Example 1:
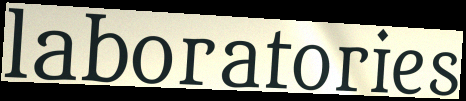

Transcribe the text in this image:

laboratories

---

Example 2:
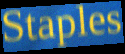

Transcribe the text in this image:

Staples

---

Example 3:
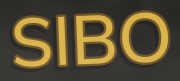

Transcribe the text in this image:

SIBO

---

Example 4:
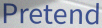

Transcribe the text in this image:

Pretend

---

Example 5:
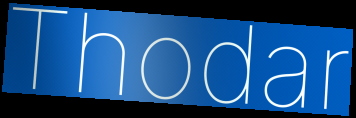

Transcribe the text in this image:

Thodar